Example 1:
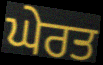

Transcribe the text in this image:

ਘੇਰਤ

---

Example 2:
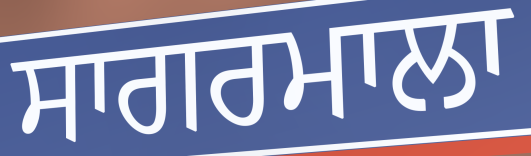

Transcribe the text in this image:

ਸਾਗਰਮਾਲਾ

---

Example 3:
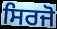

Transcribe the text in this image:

ਸਿਰਜੋ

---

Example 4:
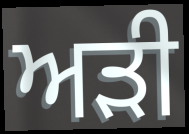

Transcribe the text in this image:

ਅੜੀ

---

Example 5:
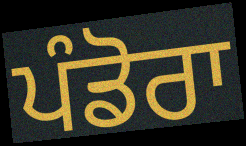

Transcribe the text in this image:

ਪੰਡੋਰਾ